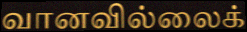
வானவில்லைக்